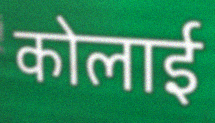
कोलाई